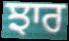
ਝਾਰ